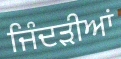
ਜਿੰਦੜੀਆਂ